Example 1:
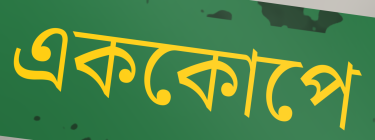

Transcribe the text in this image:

এককোপে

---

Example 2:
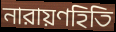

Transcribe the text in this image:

নারায়ণহিতি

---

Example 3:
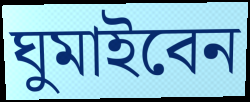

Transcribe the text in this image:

ঘুমাইবেন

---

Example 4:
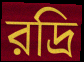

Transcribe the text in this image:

রদ্রি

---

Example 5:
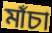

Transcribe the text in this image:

মাঁচা